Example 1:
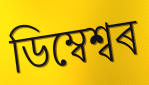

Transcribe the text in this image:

ডিম্বেশ্বৰ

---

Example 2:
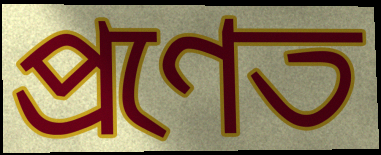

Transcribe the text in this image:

প্ৰণেত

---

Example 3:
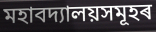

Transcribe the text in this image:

মহাবদ্যালয়সমূহৰ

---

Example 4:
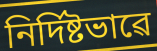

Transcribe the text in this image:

নিৰ্দিষ্টভাৱে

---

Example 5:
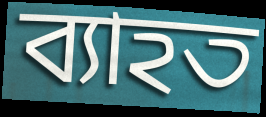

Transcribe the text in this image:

ব্যাহত